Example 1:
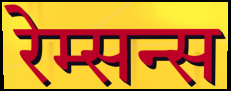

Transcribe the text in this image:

रेम्सन्स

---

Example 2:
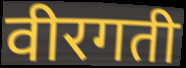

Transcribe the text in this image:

वीरगती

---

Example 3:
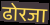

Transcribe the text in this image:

ढोरजा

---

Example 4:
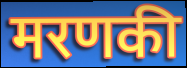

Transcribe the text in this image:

मरणकी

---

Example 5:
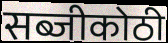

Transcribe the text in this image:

सब्जीकोठी